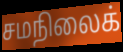
சமநிலைக்